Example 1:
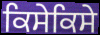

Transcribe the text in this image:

ਕਿਸੇਕਿਸੇ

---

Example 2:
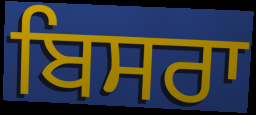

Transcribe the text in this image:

ਬਿਸਰਾ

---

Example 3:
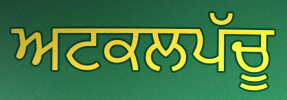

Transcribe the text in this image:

ਅਟਕਲਪੱਚੂ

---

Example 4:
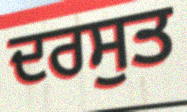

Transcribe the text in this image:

ਦਰਸੁਤ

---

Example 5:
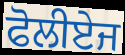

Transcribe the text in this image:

ਫੋਲੀਏਜ